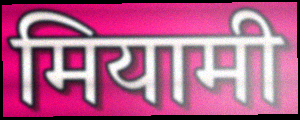
मियामी